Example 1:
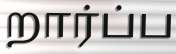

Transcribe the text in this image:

றார்ப்ப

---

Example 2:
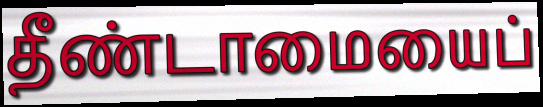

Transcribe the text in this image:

தீண்டாமையைப்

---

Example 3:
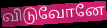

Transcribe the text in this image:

விடுவோனே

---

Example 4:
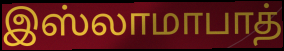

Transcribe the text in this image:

இஸ்லாமாபாத்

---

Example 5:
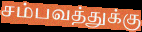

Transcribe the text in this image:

சம்பவத்துக்கு